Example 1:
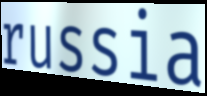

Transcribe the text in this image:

russia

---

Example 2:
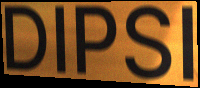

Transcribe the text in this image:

DIPSI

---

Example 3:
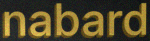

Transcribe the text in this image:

nabard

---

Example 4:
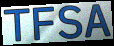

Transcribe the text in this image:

TFSA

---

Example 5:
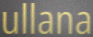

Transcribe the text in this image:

ullana